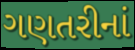
ગણતરીનાં